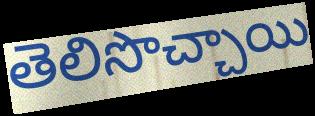
తెలిసొచ్చాయి